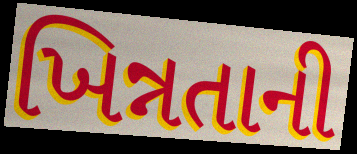
ખિન્નતાની